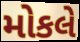
મોકલે